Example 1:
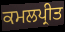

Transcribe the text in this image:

ਕਮਲਪ੍ਰੀਤ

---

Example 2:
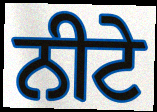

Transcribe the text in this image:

ਨੀਟੇ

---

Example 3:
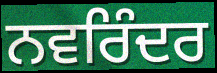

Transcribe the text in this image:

ਨਵਰਿੰਦਰ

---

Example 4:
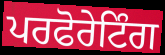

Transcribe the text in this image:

ਪਰਫੋਰੇਟਿੰਗ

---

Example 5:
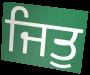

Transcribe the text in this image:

ਜਿਤੁ